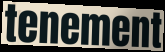
tenement